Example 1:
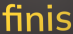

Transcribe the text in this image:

finis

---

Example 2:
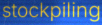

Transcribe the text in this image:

stockpiling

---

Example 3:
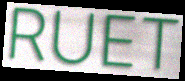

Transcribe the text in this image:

RUET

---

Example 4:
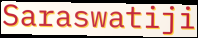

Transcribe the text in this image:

Saraswatiji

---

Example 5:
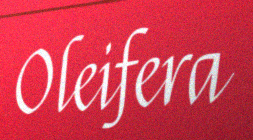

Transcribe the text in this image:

Oleifera